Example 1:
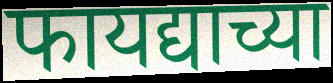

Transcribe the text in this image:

फायद्याच्या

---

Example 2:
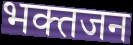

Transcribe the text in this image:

भक्तजन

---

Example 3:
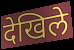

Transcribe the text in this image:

देखिले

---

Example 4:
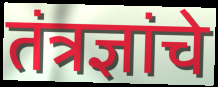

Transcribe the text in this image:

तंत्रज्ञांचे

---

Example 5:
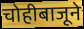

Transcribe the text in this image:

चोहीबाजूने